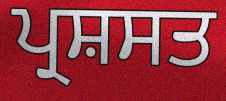
ਪ੍ਰਸ਼ਸਤ